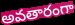
అవతారంగా